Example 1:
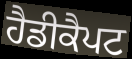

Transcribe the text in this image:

ਹੈਡੀਕੈਪਟ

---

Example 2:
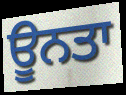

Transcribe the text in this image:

ਊਨਤਾ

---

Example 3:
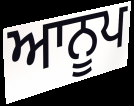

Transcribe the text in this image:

ਆਨੂਪ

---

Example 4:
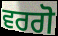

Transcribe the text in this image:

ਵਰਗੋ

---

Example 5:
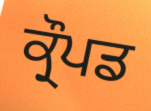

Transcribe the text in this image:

ਕ੍ਰੌਪਡ